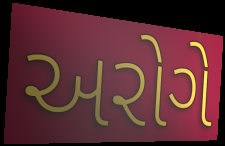
અરોગે